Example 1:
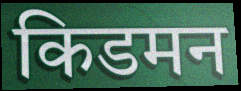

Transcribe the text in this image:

किडमन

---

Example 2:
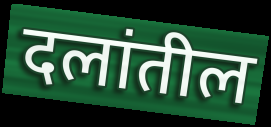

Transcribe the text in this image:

दलांतील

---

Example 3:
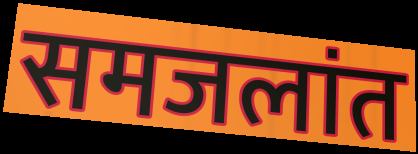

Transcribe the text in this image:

समजलांत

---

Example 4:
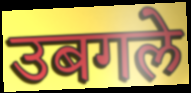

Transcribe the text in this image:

उबगले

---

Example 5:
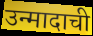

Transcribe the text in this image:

उन्मादाची